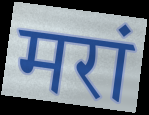
मरां